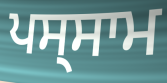
ਪਸ੍ਸਾਮ